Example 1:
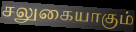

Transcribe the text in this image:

சலுகையாகும்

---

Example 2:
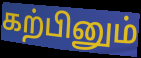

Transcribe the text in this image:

கற்பினும்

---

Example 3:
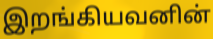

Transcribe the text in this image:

இறங்கியவனின்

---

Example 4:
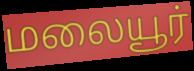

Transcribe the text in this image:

மலையூர்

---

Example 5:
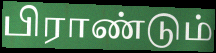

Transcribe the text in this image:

பிராண்டும்